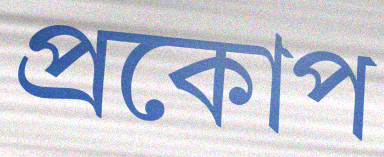
প্ৰকোপ